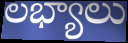
లభ్యాలు